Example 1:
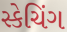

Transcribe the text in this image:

સ્કેચિંગ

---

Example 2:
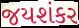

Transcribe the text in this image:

જયશંકર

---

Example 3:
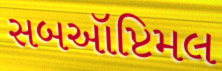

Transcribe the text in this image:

સબઑપ્ટિમલ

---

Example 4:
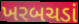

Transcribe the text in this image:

ખરબચડાં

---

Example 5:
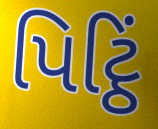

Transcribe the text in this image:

પિટ્ઠિં